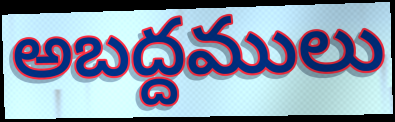
అబద్దములు